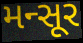
મન્સૂર